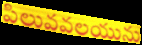
పిలువవలయును